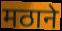
मठाने